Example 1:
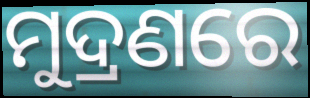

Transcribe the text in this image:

ମୁଦ୍ରଣରେ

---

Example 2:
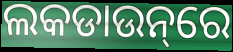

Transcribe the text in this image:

ଲକଡାଉନ୍‌ରେ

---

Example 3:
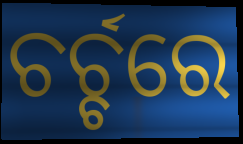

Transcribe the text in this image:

ଚର୍ଚ୍ଚରେ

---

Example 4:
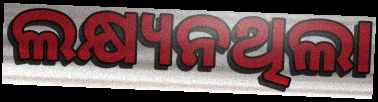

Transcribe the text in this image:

ଲକ୍ଷ୍ୟନଥିଲା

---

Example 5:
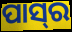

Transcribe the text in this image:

ପାସ୍‍ର